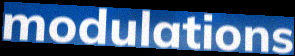
modulations